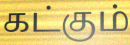
கட்கும்